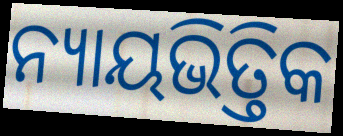
ନ୍ୟାୟଭିତ୍ତିକ